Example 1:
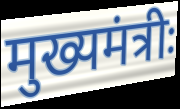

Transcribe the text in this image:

मुख्यमंत्रीः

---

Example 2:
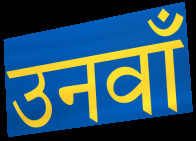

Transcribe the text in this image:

उनवाँ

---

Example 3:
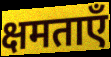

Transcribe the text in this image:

क्षमताएँ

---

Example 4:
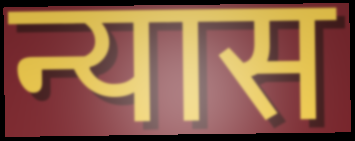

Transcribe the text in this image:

न्यास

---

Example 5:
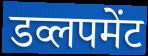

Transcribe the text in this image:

डव्लपमेंट